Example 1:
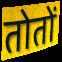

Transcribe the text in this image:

तोतों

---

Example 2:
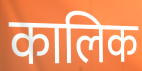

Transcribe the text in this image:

कालिक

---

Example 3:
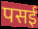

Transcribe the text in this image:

पसई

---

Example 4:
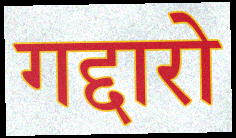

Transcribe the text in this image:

गद्दारो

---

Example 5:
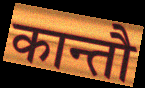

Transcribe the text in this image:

कान्तौ